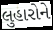
લુહારોને